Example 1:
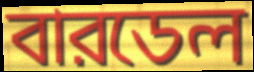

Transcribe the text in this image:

বারডেল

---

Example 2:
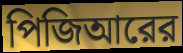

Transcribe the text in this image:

পিজিআরের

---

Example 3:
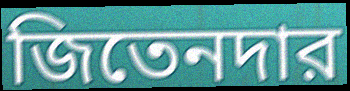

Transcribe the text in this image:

জিতেনদার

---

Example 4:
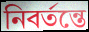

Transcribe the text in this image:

নিবর্তন্তে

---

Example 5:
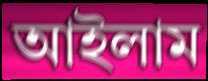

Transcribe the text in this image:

আইলাম